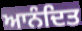
ਆਨੰਦਿਤ